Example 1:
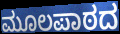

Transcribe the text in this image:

ಮೂಲಪಾಠದ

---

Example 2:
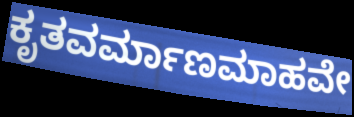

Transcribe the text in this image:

ಕೃತವರ್ಮಾಣಮಾಹವೇ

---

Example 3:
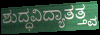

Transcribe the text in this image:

ಶುದ್ಧವಿದ್ಯಾತತ್ತ್ವ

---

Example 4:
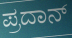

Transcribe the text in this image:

ಪ್ರದಾನ್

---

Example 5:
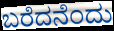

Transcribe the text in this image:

ಬರೆದನೆಂದು